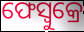
ଫେସ୍ବୁକ୍ରେ